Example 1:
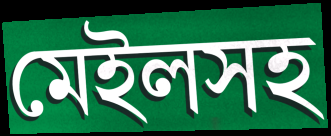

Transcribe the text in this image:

মেইলসহ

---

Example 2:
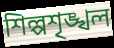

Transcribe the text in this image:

শিল্পশৃঙ্খল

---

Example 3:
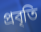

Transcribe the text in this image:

প্রবৃতি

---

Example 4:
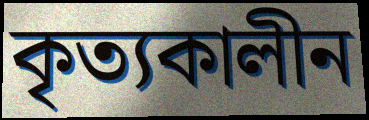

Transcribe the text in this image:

কৃত্যকালীন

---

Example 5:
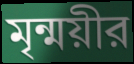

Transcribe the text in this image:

মৃন্ময়ীর